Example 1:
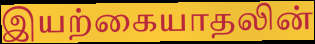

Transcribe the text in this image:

இயற்கையாதலின்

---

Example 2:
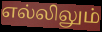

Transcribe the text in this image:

எல்லிலும்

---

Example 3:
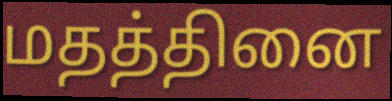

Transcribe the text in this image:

மதத்தினை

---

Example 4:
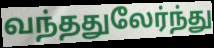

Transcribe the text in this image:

வந்ததுலேர்ந்து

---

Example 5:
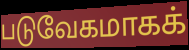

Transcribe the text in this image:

படுவேகமாகக்